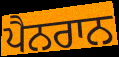
ਪੈਨਰਾਨ